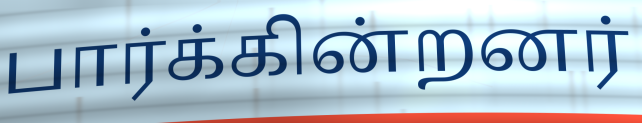
பார்க்கின்றனர்